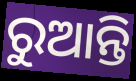
ରୁଆନ୍ତି